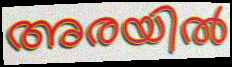
അരയിൽ